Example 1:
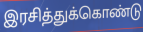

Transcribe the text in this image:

இரசித்துக்கொண்டு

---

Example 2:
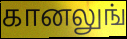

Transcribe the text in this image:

கானலுங்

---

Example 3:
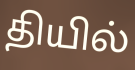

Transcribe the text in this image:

தியில்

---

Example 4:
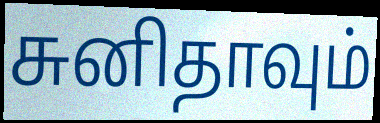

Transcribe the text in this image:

சுனிதாவும்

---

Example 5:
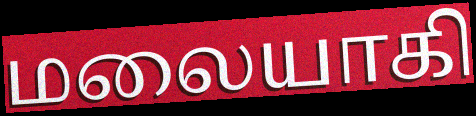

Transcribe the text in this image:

மலையாகி